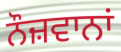
ਨੌਜ਼ਵਾਨਾਂ